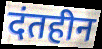
दंतहीन